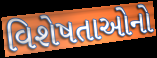
વિશેષતાઓનો